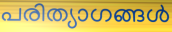
പരിത്യാഗങ്ങൾ